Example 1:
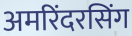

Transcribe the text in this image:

अमरिंदरसिंग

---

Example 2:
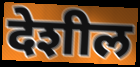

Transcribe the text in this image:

देशील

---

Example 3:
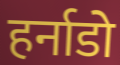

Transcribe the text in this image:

हर्नाडो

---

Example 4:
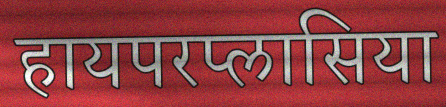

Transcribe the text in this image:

हायपरप्लासिया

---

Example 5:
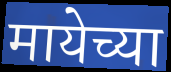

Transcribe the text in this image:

मायेच्या